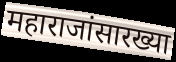
महाराजांसारख्या